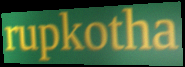
rupkotha